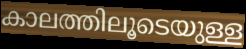
കാലത്തിലൂടെയുള്ള